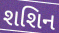
શશિન